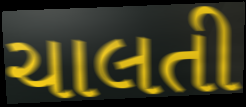
ચાલતી